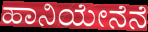
ಹಾನಿಯೇನೆನೆ